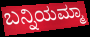
ಬನ್ನಿಯಮ್ಮಾ